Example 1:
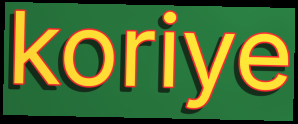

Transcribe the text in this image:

koriye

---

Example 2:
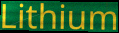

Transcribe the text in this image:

Lithium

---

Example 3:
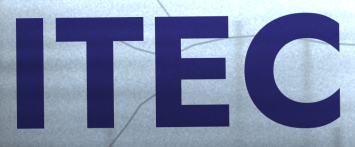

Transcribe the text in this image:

ITEC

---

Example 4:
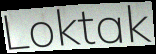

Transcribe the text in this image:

Loktak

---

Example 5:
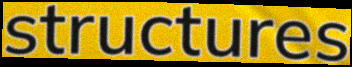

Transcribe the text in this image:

structures